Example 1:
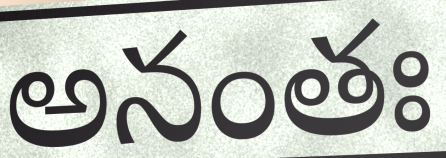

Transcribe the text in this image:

అనంతః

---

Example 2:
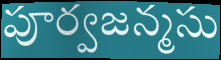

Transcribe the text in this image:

పూర్వజన్మసు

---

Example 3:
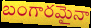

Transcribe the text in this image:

బంగారమైనా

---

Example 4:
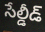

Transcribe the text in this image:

సేల్డీడ్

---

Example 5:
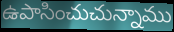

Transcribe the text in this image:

ఉపాసించుచున్నాము